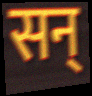
सन्